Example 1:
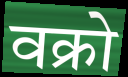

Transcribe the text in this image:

वक्रो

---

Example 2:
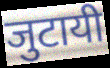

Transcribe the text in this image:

जुटायी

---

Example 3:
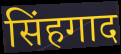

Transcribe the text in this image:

सिंहगाद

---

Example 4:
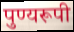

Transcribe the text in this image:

पुण्यरूपी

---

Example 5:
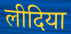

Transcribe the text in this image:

लीदिया